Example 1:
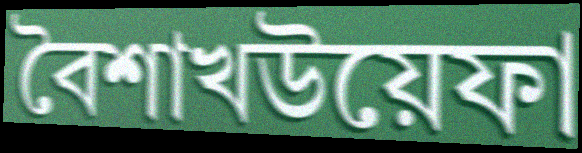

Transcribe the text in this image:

বৈশাখউয়েফা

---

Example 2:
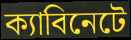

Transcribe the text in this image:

ক্যাবিনেটে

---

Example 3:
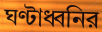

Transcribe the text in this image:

ঘণ্টাধ্বনির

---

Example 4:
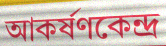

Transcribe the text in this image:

আকর্ষণকেন্দ্র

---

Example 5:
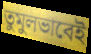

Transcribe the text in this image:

তুমুলভাবেই